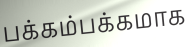
பக்கம்பக்கமாக